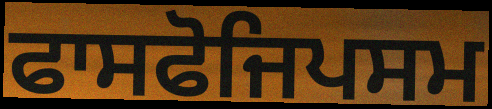
ਫਾਸਫੋਜਿਪਸਮ